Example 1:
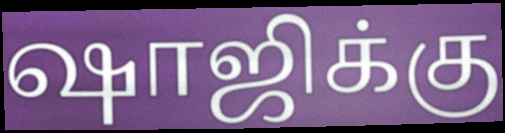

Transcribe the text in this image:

ஷாஜிக்கு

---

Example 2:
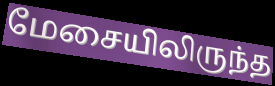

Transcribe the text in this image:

மேசையிலிருந்த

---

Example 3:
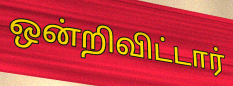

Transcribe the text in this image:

ஒன்றிவிட்டார்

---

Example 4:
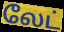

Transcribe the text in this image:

லேட்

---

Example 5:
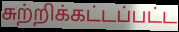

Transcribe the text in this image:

சுற்றிக்கட்டப்பட்ட